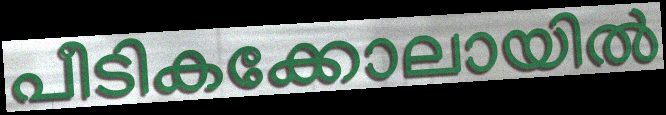
പീടികക്കോലായിൽ